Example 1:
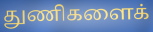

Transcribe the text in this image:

துணிகளைக்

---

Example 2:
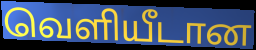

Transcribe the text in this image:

வெளியீடான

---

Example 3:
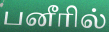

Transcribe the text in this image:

பனீரில்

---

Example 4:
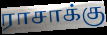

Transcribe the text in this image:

ராசாக்கு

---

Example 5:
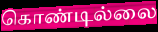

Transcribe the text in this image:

கொண்டில்லை